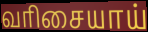
வரிசையாய்